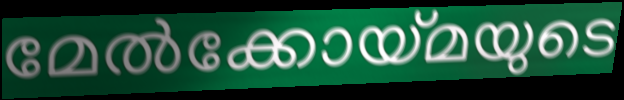
മേൽക്കോയ്മയുടെ